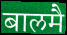
बालमै